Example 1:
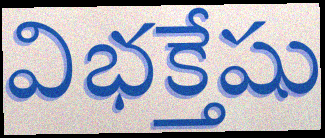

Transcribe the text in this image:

విభక్తేషు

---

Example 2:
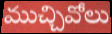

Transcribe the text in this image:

ముచ్చివోలు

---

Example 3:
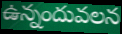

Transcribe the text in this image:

ఉన్నందువలన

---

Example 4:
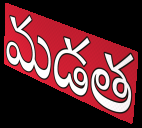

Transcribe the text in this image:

మడత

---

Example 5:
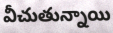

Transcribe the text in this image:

వీచుతున్నాయి